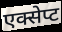
एक्सेप्ट